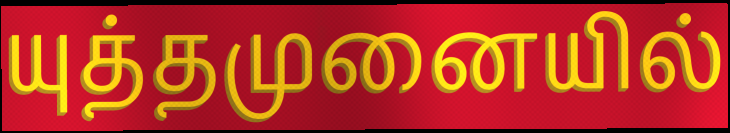
யுத்தமுனையில்